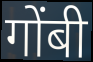
गोंबी